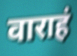
वाराहं